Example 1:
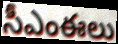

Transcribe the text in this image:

సీఎంఈలు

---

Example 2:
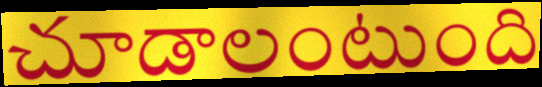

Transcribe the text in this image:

చూడాలంటుంది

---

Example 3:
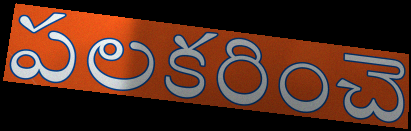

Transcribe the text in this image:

పలకరించె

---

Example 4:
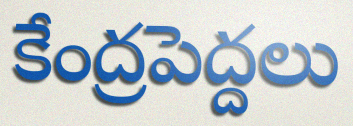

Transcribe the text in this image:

కేంద్రపెద్దలు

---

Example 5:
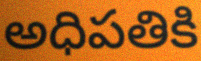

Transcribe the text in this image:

అధిపతికి